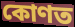
কোণত